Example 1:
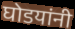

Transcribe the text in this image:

घोडयांनी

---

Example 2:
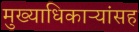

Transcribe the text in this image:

मुख्याधिकाऱ्यांसह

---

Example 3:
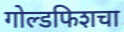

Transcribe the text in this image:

गोल्डफिशचा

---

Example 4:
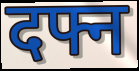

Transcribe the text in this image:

दफ्न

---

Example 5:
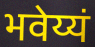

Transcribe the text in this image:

भवेय्यं